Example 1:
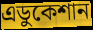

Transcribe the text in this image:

এডুকেশান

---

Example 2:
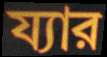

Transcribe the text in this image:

য্যার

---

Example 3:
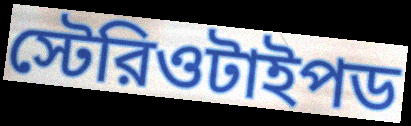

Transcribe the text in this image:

স্টেরিওটাইপড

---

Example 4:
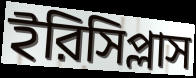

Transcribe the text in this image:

ইরিসিপ্লাস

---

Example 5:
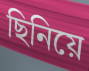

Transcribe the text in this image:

ছিনিয়ে